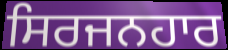
ਸਿਰਜਨਹਾਰ